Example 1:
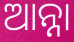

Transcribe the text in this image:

ଆନ୍ନା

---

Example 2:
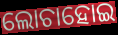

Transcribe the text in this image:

ଲୋଚାହୋଇ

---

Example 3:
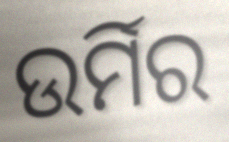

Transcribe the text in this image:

ଉର୍ମିର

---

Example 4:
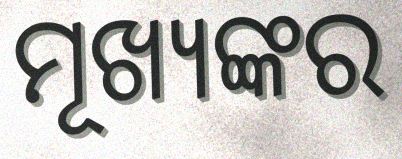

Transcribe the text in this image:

ମୂଖ୍ୟଙ୍କର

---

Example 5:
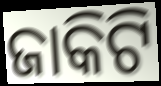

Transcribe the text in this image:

ଜାକିଟି